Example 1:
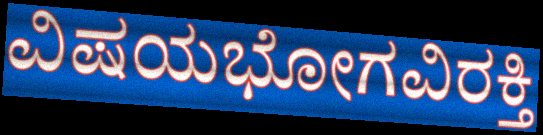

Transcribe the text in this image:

ವಿಷಯಭೋಗವಿರಕ್ತಿ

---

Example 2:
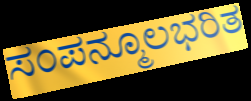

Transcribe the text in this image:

ಸಂಪನ್ಮೂಲಭರಿತ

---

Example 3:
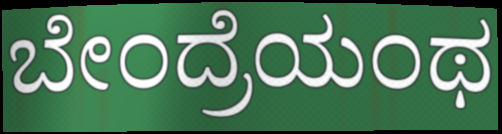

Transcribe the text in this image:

ಬೇಂದ್ರೆಯಂಥ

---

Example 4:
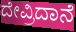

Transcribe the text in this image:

ದೇವ್ರಿದಾನೆ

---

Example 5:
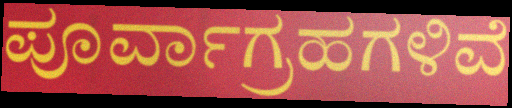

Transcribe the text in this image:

ಪೂರ್ವಾಗ್ರಹಗಳಿವೆ